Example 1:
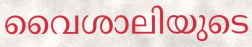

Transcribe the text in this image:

വൈശാലിയുടെ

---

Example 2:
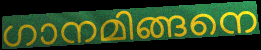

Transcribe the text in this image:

ഗാനമിങ്ങനെ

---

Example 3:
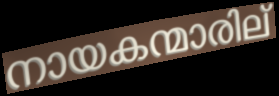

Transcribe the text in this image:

നായകന്മാരില്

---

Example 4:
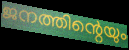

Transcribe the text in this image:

ജനത്തിന്റെയും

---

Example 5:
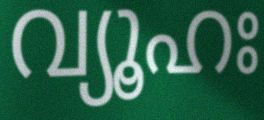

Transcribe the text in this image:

വ്യൂഹഃ